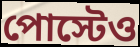
পোস্টেও